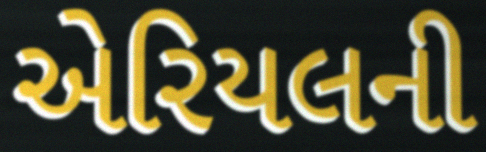
એરિયલની